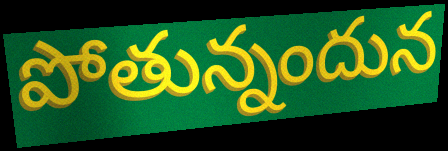
పోతున్నందున